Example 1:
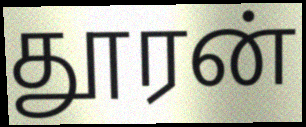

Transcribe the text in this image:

தூரன்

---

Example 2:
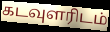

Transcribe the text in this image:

கடவுளரிடம்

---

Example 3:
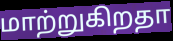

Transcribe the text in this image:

மாற்றுகிறதா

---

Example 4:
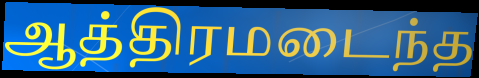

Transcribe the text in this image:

ஆத்திரமடைந்த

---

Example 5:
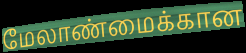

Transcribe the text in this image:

மேலாண்மைக்கான